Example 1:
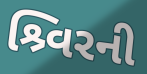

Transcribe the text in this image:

શ્ર્વિરની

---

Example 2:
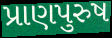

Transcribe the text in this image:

પ્રાણપુરુષ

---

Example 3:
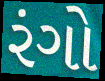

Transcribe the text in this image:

રંગો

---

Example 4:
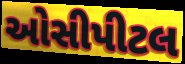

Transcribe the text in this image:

ઓસીપીટલ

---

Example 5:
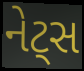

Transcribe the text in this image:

નેટ્સ